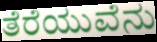
ತೆರೆಯುವೆನು